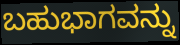
ಬಹುಭಾಗವನ್ನು